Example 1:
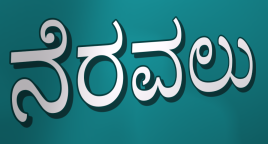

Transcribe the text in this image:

ನೆರವಲು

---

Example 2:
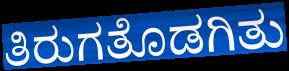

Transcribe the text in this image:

ತಿರುಗತೊಡಗಿತು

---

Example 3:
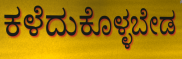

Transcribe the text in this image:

ಕಳೆದುಕೊಳ್ಳಬೇಡ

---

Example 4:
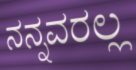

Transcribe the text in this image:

ನನ್ನವರಲ್ಲ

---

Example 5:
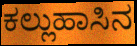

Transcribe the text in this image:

ಕಲ್ಲುಹಾಸಿನ